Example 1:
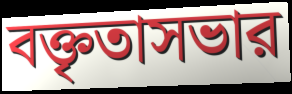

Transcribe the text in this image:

বক্তৃতাসভার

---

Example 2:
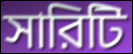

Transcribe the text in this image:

সারিটি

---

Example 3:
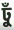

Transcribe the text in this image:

ঢুঁ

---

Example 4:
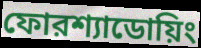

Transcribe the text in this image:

ফোরশ্যাডোয়িং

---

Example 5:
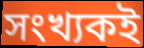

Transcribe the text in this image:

সংখ্যকই